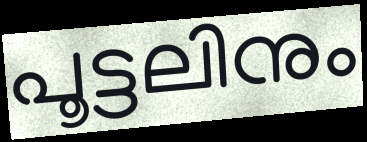
പൂട്ടലിനും